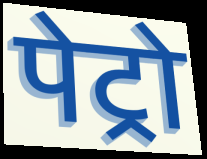
पेट्रो